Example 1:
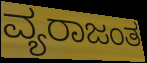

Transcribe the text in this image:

ವ್ಯರಾಜಂತ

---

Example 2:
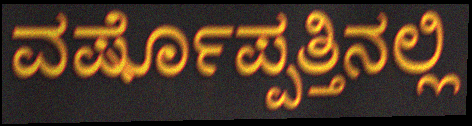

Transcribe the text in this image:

ವರ್ಷೊಪ್ಪತ್ತಿನಲ್ಲಿ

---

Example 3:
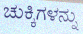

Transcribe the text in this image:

ಚುಕ್ಕಿಗಳನ್ನು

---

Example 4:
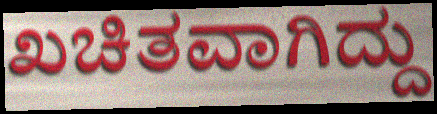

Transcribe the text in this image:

ಖಚಿತವಾಗಿದ್ದು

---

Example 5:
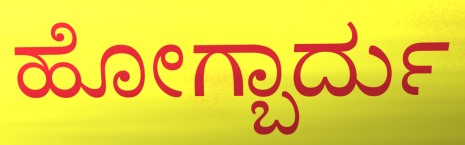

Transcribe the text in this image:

ಹೋಗ್ಬಾರ್ದು